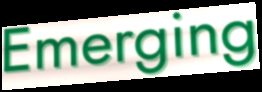
Emerging